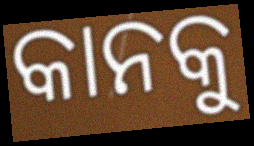
କାନକୁ